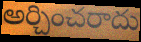
అర్చించరాదు